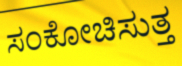
ಸಂಕೋಚಿಸುತ್ತ